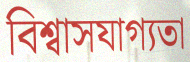
বিশ্বাসযাগ্যতা